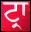
ਟ੍ਰਾ